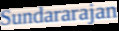
Sundararajan